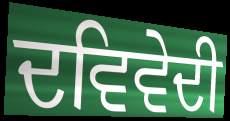
ਦਵਿਵੇਦੀ